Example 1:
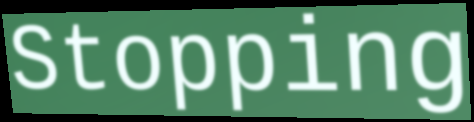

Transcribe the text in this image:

Stopping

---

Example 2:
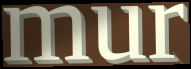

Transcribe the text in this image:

mur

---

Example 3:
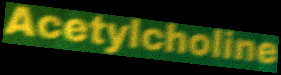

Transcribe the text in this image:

Acetylcholine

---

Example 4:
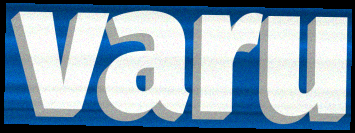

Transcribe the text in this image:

varu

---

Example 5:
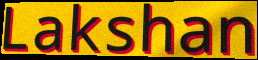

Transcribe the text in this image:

Lakshan